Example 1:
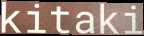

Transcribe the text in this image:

kitaki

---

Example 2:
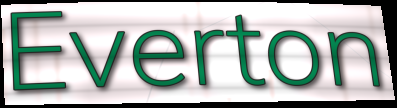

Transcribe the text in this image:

Everton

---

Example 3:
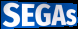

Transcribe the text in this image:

SEGAs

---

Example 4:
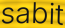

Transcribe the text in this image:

sabit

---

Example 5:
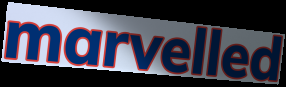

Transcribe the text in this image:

marvelled